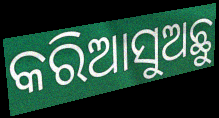
କରିଆସୁଅଛୁ